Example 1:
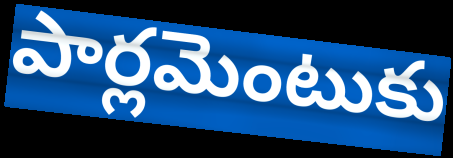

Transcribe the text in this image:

పార్లమెంటుకు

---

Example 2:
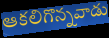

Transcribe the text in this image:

ఆకలిగొన్నవాడు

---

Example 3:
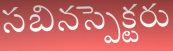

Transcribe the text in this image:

సబినస్పెక్టరు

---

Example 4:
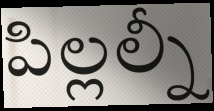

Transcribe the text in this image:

పిల్లల్నీ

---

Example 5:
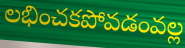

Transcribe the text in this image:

లభించకపోవడంవల్ల